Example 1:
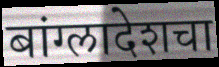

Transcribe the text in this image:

बांग्लादेशचा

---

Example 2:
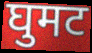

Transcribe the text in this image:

घुमट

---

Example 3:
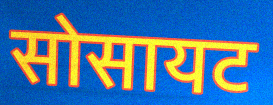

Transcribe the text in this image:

सोसायट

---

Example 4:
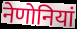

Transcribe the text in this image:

नेणोनियां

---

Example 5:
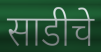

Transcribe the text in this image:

साडीचे